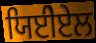
ਯਿਈੇਏਲ